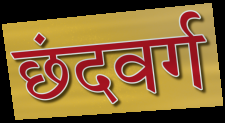
छंदवर्ग